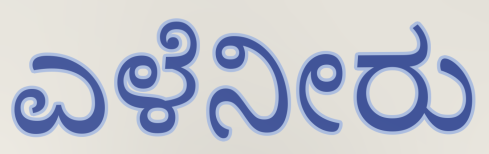
ಎಳೆನೀರು